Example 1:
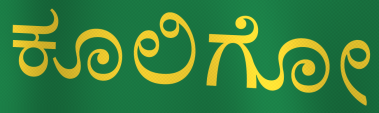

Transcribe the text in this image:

ಕೂಲಿಗೋ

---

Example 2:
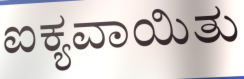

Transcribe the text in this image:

ಐಕ್ಯವಾಯಿತು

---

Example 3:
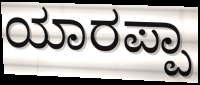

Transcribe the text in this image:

ಯಾರಪ್ಪಾ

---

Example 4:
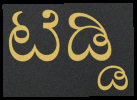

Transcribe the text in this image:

ಟೆಡ್ಡಿ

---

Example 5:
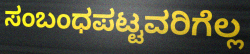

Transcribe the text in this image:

ಸಂಬಂಧಪಟ್ಟವರಿಗೆಲ್ಲ